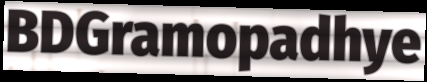
BDGramopadhye